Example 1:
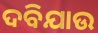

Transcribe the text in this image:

ଦବିଯାଉ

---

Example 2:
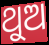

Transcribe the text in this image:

ଥୁଅ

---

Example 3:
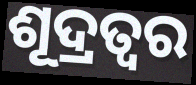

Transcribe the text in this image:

ଶୂଦ୍ରତ୍ଵର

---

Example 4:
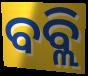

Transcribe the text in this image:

ବବ୍ଲି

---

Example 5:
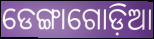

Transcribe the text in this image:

ଡେଙ୍ଗାଗୋଡ଼ିଆ